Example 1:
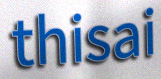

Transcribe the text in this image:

thisai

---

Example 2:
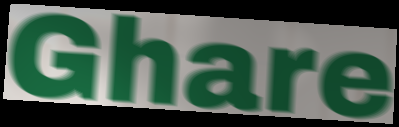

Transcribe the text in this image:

Ghare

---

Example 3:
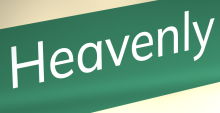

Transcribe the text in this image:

Heavenly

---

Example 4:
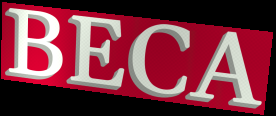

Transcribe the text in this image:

BECA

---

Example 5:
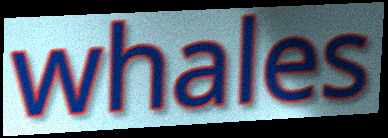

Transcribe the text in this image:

whales